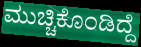
ಮುಚ್ಚಿಕೊಂಡಿದ್ದೆ